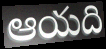
ఆయది